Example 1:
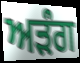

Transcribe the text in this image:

ਅੜੰਗ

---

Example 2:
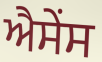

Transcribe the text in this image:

ਐਸੇਂਸ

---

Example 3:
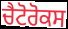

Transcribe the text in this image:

ਚੈਟੋਰੋਕਸ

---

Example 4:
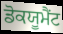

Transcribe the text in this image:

ਡੋਕਯੂਮੈਂਟ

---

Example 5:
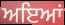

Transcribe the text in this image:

ਅਇਆਂ